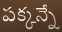
పక్కన్నే